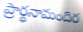
ప్రార్థనామందిర